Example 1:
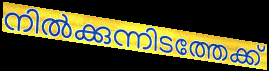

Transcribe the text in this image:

നിൽക്കുന്നിടത്തേക്ക്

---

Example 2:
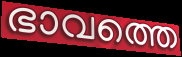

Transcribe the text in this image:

ഭാവത്തെ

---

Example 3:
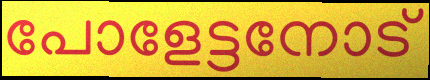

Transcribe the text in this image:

പോളേട്ടനോട്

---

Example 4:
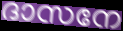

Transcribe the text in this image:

ദാസനേ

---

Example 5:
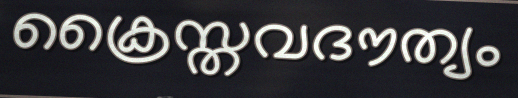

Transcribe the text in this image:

ക്രൈസ്തവദൗത്യം